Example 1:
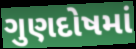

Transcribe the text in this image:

ગુણદોષમાં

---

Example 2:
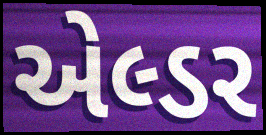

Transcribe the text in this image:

એલ્ડર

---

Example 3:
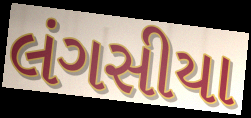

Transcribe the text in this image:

લંગસીયા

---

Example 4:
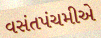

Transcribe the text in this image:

વસંતપંચમીએ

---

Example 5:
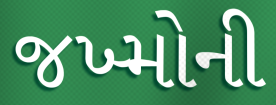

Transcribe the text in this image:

જખ્મોની